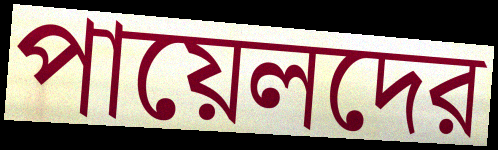
পায়েলদের